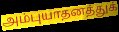
அம்புயாதனத்துக்